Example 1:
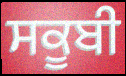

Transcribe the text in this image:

ਸਕੂਬੀ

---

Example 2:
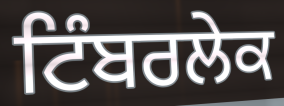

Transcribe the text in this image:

ਟਿੰਬਰਲੇਕ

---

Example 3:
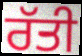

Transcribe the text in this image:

ਰੱਤੀ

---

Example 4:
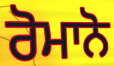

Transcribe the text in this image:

ਰੋਮਾਨੋ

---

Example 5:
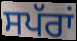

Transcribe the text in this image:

ਸਪੱਰਾਂ